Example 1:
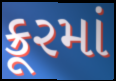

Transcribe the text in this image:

ક્રૂરમાં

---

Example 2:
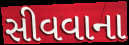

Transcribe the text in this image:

સીવવાના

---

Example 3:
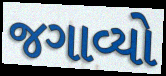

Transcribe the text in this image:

જગાવ્યો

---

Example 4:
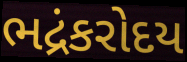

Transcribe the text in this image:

ભદ્રંકરોદય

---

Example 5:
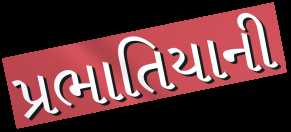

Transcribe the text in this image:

પ્રભાતિયાની